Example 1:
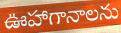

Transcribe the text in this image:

ఊహాగానాలను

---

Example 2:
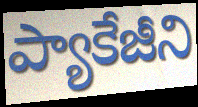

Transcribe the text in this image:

ప్యాకేజీని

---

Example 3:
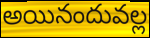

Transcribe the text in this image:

అయినందువల్ల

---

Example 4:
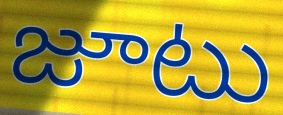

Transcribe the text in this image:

జూటు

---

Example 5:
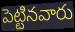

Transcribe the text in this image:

పెట్టినవారు